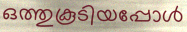
ഒത്തുകൂടിയപ്പോൾ